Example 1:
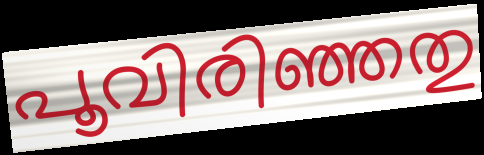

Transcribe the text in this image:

പൂവിരിഞ്ഞതു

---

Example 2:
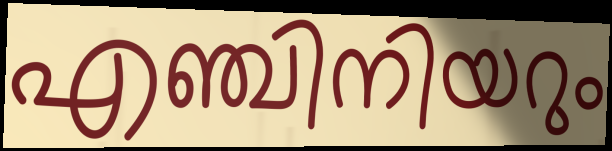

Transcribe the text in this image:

എഞ്ചിനിയറും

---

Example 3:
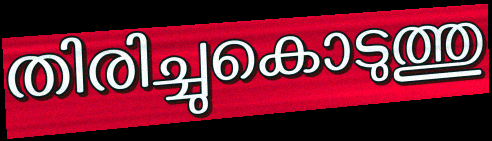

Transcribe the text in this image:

തിരിച്ചുകൊടുത്തു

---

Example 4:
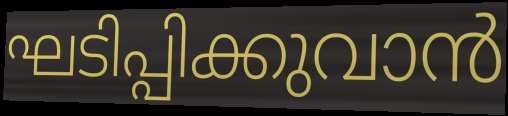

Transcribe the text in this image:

ഘടിപ്പിക്കുവാൻ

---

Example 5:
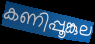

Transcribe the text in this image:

കണിപ്പൂങ്കുല